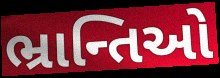
ભ્રાન્તિઓ